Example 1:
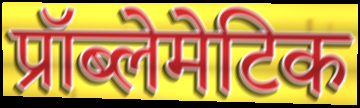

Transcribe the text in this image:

प्रॉब्लेमेटिक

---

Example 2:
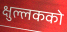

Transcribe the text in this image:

क्षुल्लकको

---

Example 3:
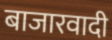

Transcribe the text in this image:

बाजारवादी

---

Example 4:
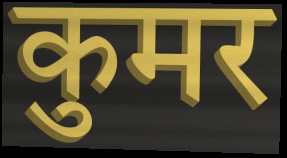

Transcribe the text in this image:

कुमर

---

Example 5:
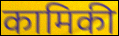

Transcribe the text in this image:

कामिकी